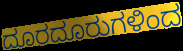
ದೂರದೂರುಗಳಿಂದ